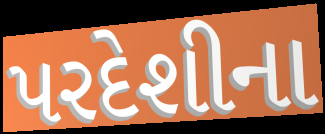
પરદેશીના